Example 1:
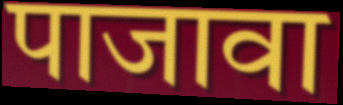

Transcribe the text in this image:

पाजावा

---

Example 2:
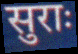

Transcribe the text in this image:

सुराः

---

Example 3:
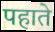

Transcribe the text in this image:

पहाते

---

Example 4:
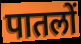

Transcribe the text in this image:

पातलों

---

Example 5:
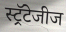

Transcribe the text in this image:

स्ट्रॅटेजीज